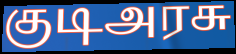
குடிஅரசு